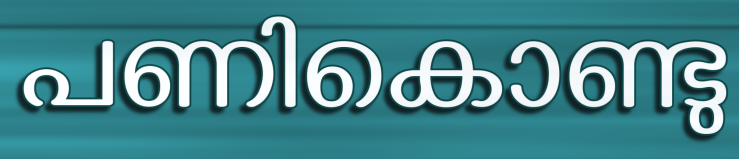
പണികൊണ്ടു